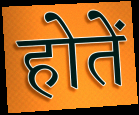
होतें